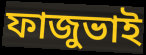
ফাজুভাই